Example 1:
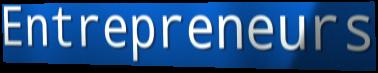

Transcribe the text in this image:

Entrepreneurs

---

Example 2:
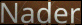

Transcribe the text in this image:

Nader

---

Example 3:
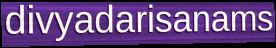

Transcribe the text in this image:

divyadarisanams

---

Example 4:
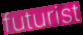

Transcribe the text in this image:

futurist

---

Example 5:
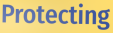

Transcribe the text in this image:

Protecting